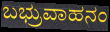
ಬಭ್ರುವಾಹನಂ